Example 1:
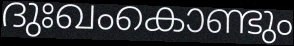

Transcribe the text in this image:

ദുഃഖംകൊണ്ടും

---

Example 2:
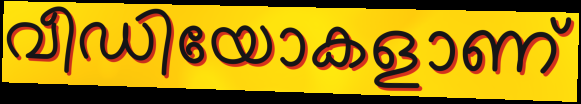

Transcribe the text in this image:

വീഡിയോകളാണ്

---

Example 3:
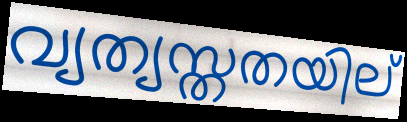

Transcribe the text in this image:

വ്യത്യസ്തതയില്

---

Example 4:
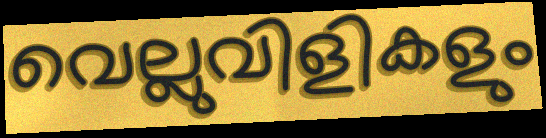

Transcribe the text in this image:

വെല്ലുവിളികളും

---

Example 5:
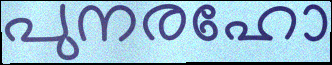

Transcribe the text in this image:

പുനരഹോ